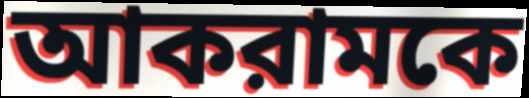
আকরামকে